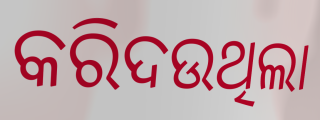
କରିଦଉଥିଲା